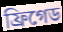
ফ্রিগেড